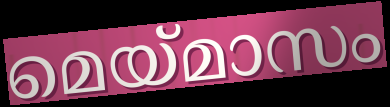
മെയ്മാസം